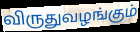
விருதுவழங்கும்